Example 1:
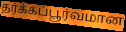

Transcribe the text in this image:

தர்க்கப்பூர்வமான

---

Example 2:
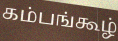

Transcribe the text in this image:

கம்பங்கூழ்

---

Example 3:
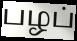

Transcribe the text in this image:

பழப்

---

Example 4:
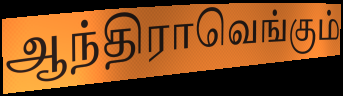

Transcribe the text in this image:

ஆந்திராவெங்கும்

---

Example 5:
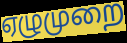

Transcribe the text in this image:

ஏழுமுறை